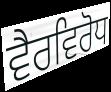
ਵੈਰਵਿਰੋਧ